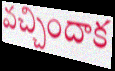
వచ్చిందాక